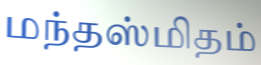
மந்தஸ்மிதம்